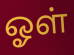
ஓள்